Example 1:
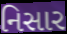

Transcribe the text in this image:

નિસાર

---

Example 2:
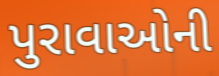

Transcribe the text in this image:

પુરાવાઓની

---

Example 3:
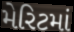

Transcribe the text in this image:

મેરિટમાં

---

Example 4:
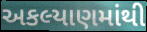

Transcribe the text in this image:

અકલ્યાણમાંથી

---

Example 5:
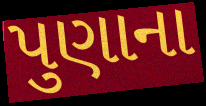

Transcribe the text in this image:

પુણાના